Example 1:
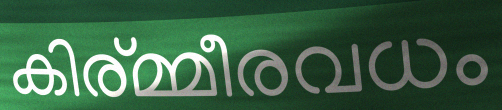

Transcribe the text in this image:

കിര്മ്മീരവധം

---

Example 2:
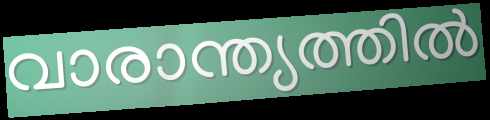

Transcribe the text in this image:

വാരാന്ത്യത്തിൽ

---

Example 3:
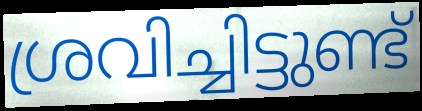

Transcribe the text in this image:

ശ്രവിച്ചിട്ടുണ്ട്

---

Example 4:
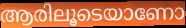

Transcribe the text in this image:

ആരിലൂടെയാണോ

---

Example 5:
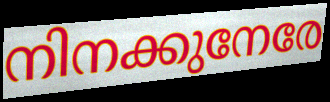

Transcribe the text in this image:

നിനക്കുനേരേ